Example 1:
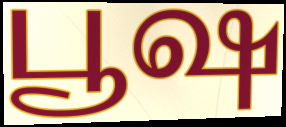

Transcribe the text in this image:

பூஷ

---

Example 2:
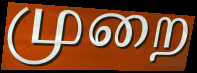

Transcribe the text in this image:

முறை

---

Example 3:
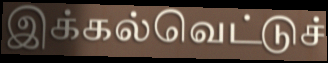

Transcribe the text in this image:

இக்கல்வெட்டுச்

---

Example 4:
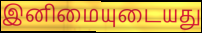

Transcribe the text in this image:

இனிமையுடையது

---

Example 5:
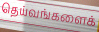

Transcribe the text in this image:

தெய்வங்களைக்